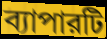
ব্যাপারটি